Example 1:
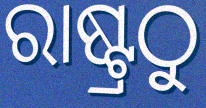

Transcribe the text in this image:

ରାଷ୍ଟ୍ରଠୁ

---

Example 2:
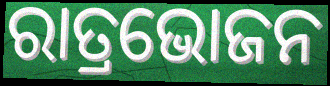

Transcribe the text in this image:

ରାତ୍ରଭୋଜନ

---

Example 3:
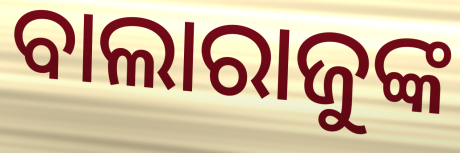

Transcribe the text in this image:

ବାଲାରାଜୁଙ୍କ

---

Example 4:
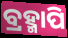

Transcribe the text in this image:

ବ୍ରହ୍ମାପି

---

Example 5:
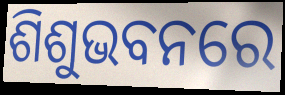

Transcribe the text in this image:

ଶିଶୁଭବନରେ